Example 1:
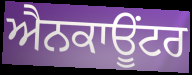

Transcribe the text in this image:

ਐਨਕਾਊਂਟਰ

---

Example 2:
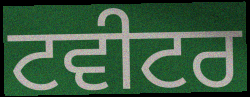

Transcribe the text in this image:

ਟਵੀਟਰ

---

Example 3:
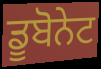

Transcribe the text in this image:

ਡੂਬੋਨੇਟ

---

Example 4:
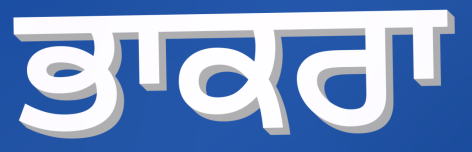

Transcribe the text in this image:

ਭਾਕਰਾ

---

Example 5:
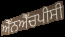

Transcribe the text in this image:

ਐੱਨਐੱਚਪੀਸੀ